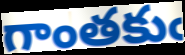
గాంతకుఁ